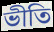
ভীতি